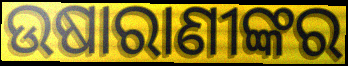
ଉଷାରାଣୀଙ୍କର